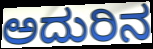
ಅದುರಿನ